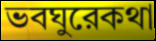
ভবঘুরেকথা